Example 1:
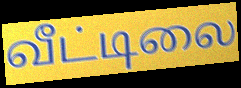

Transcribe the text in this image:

வீட்டிலை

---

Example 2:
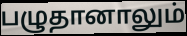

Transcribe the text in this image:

பழுதானாலும்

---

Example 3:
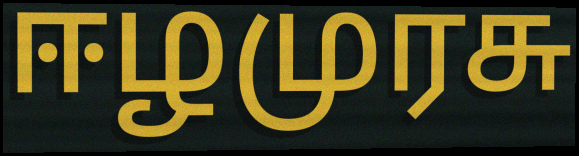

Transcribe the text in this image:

ஈழமுரசு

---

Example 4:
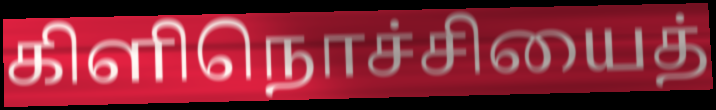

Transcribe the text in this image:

கிளிநொச்சியைத்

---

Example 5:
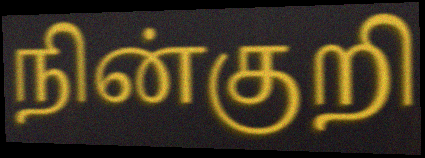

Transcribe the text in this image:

நின்குறி